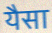
यैसा